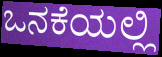
ಒನಕೆಯಲ್ಲಿ